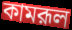
কামরূল